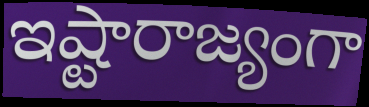
ఇష్టారాజ్యంగా